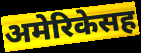
अमेरिकेसह